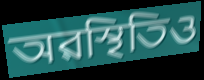
অৱস্থিতিও